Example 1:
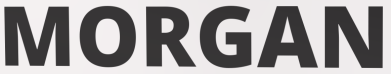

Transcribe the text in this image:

MORGAN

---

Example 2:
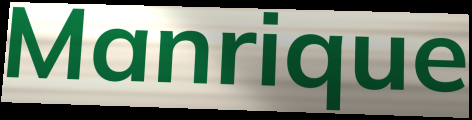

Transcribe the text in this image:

Manrique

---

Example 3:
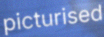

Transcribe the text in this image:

picturised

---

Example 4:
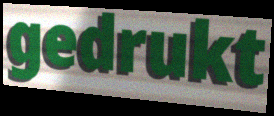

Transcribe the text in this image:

gedrukt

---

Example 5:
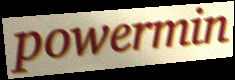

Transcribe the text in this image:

powermin